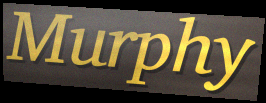
Murphy